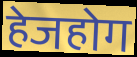
हेजहोग